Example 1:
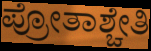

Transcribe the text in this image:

ಪ್ರೋತಾಶ್ಚೇತಿ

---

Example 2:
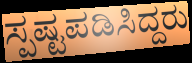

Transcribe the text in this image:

ಸ್ಪಷ್ಟಪಡಿಸಿದ್ದರು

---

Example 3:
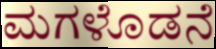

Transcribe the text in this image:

ಮಗಳೊಡನೆ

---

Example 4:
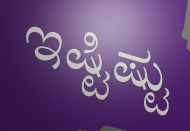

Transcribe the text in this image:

ಇಷ್ಟಿಷ್ಟು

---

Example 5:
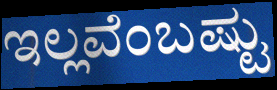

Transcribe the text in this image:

ಇಲ್ಲವೆಂಬಷ್ಟು